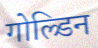
गोल्डिन